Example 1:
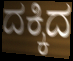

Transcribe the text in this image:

ದಕ್ಕಿದ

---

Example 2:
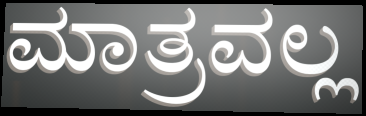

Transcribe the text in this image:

ಮಾತ್ರವಲ್ಲ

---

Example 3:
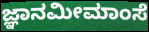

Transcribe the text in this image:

ಜ್ಞಾನಮೀಮಾಂಸೆ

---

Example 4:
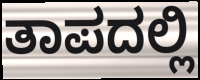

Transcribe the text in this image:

ತಾಪದಲ್ಲಿ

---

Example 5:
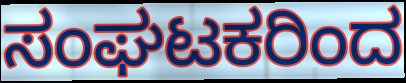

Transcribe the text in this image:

ಸಂಘಟಕರಿಂದ